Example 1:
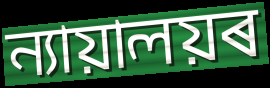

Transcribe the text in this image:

ন্যায়ালয়ৰ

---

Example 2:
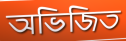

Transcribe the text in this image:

অভিজিত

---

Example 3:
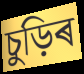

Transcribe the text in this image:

চুড়িৰ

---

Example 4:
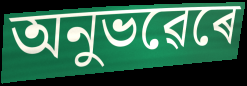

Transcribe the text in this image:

অনুভৱেৰে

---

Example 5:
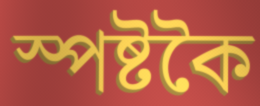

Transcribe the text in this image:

স্পষ্টকৈ